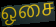
ஒசை